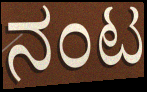
ನಂಟ